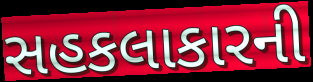
સહકલાકારની